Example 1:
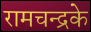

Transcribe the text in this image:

रामचन्द्रके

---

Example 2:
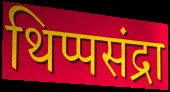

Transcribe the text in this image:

थिप्पसंद्रा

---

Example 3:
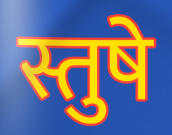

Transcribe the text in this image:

स्तुषे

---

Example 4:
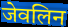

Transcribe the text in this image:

जेवलिन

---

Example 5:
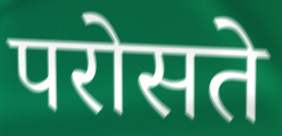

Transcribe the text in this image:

परोसते